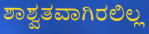
ಶಾಶ್ವತವಾಗಿರಲಿಲ್ಲ